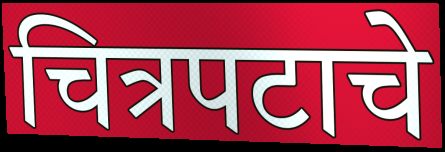
चित्रपटाचे